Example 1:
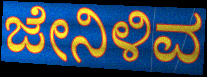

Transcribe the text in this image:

ಜೇನಿಳಿವ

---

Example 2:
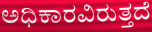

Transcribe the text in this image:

ಅಧಿಕಾರವಿರುತ್ತದೆ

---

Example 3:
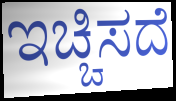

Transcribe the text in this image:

ಇಚ್ಚಿಸದೆ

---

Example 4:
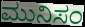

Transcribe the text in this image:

ಮುನಿಸಂ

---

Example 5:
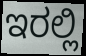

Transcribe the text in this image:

ಇರಲ್ಲಿ